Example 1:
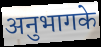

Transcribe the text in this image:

अनुभागके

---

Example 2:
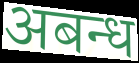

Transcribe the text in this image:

अबन्ध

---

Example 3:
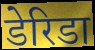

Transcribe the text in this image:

डेरिडा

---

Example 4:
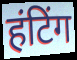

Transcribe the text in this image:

हंटिंग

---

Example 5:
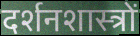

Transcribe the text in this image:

दर्शनशास्त्रों